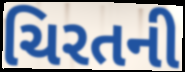
ચિરતની